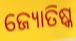
ଜ୍ୟୋତିଷ୍କ